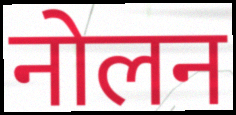
नोलन